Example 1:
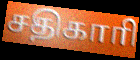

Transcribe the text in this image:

சதிகாரி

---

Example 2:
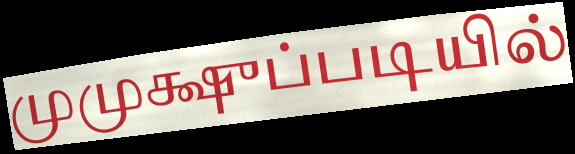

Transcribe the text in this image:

முமுக்ஷுப்படியில்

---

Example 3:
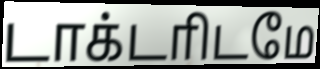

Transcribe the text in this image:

டாக்டரிடமே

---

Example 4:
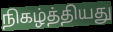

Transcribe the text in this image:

நிகழ்த்தியது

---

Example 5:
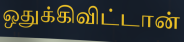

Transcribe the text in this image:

ஒதுக்கிவிட்டான்